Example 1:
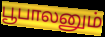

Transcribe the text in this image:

பூபாலனும்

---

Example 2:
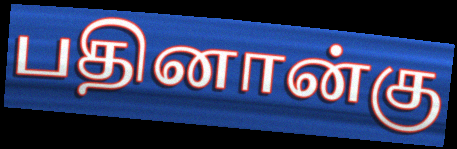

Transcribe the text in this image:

பதினான்கு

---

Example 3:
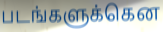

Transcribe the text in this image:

படங்களுக்கென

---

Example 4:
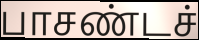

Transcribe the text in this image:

பாசண்டச்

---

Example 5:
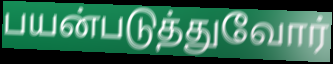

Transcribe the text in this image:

பயன்படுத்துவோர்